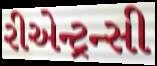
રીએન્ટ્રન્સી